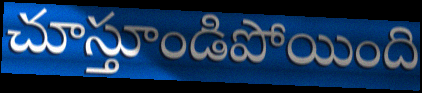
చూస్తూండిపోయింది